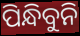
ପିନ୍ଧିବୁନି